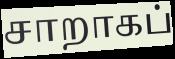
சாறாகப்